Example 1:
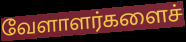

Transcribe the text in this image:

வேளாளர்களைச்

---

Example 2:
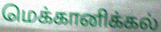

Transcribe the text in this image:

மெக்கானிக்கல்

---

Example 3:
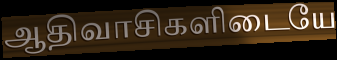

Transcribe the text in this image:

ஆதிவாசிகளிடையே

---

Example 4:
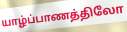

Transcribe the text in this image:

யாழ்ப்பாணத்திலோ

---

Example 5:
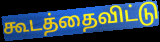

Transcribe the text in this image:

கூடத்தைவிட்டு